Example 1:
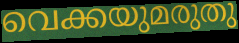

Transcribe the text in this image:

വെക്കയുമരുതു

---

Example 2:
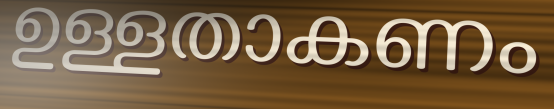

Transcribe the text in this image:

ഉള്ളതാകണം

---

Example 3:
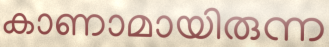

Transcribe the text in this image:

കാണാമായിരുന്ന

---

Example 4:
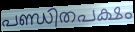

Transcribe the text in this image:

പണ്ഡിതപക്ഷം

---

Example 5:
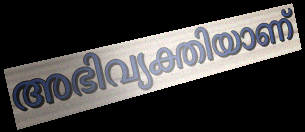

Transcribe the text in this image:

അഭിവ്യക്തിയാണ്